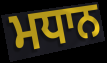
ਮਧਾਨ